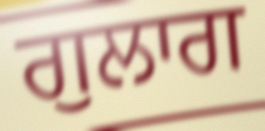
ਗੁਲਾਗ